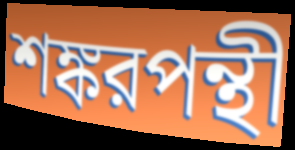
শঙ্করপন্থী